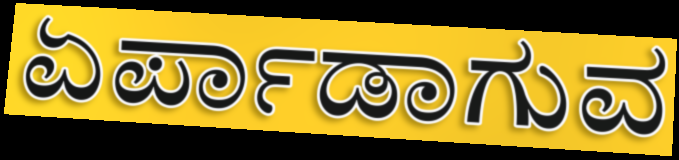
ಏರ್ಪಾಡಾಗುವ